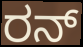
ರನ್